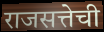
राजसत्तेची